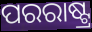
ପରରାଷ୍ଟ୍ର